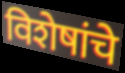
विशेषांचे